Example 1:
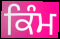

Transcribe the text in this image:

ਕਿੰਮ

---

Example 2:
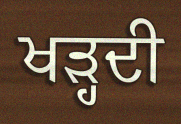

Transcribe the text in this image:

ਖੜ੍ਹਦੀ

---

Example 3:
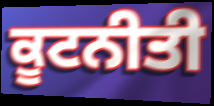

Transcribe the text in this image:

ਕੂਟਨੀਤੀ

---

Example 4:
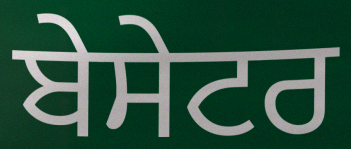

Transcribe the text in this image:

ਬੇਸੇਟਰ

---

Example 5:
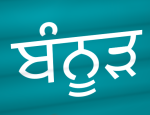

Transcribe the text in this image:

ਬੰਨੂੜ